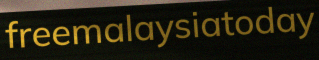
freemalaysiatoday